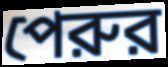
পেরুর